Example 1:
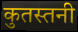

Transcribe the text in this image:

कुतस्तनी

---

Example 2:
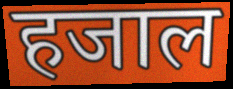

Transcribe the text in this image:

हजाल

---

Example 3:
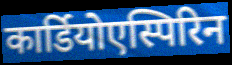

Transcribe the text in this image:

कार्डियोएस्पिरिन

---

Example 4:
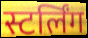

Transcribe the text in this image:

स्‍टर्लिंग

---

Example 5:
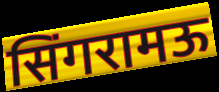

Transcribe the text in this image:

सिंगरामऊ